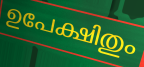
ഉപേക്ഷിതും